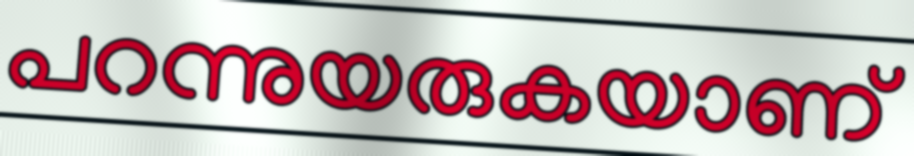
പറന്നുയരുകയാണ്